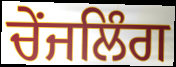
ਚੇਂਜਲਿੰਗ